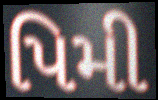
પિમી